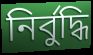
নির্বুদ্ধি